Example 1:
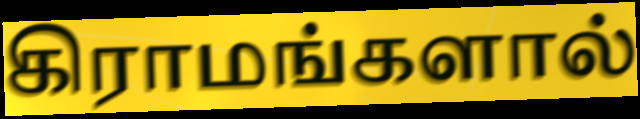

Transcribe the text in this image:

கிராமங்களால்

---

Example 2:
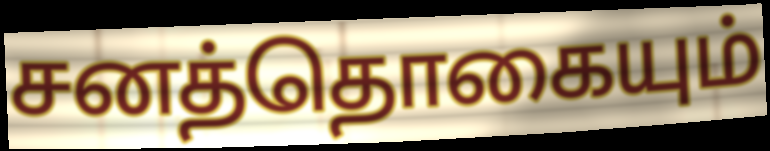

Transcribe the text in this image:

சனத்தொகையும்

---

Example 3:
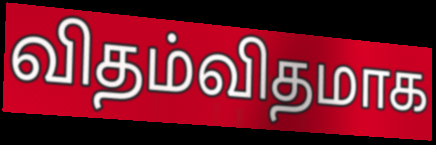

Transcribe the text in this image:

விதம்விதமாக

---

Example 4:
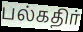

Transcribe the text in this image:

பல்கதிர்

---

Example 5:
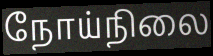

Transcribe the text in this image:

நோய்நிலை